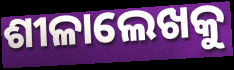
ଶୀଳାଲେଖକୁ